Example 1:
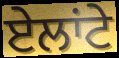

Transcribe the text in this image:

ਏਲਾਂਟੇ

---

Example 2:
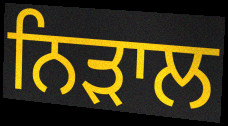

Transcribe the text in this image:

ਨਿੜਾਲ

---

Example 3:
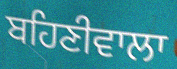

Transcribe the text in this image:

ਬਹਿਣੀਵਾਲਾ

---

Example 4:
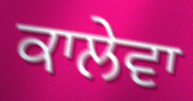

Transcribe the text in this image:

ਕਾਲੇਵਾ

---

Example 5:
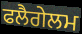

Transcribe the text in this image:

ਫਲੈਗੇਲਮ